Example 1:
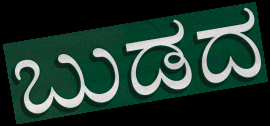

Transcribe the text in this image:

ಬುಡದ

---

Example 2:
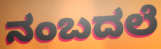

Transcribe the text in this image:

ನಂಬದಲೆ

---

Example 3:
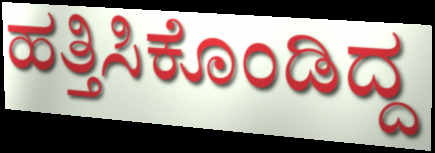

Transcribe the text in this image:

ಹತ್ತಿಸಿಕೊಂಡಿದ್ದ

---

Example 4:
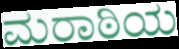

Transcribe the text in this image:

ಮರಾಠಿಯ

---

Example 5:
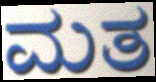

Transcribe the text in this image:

ಮತ